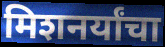
मिशनर्यांचा